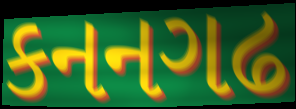
કનનગઢ